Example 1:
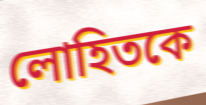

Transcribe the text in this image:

লোহিতকে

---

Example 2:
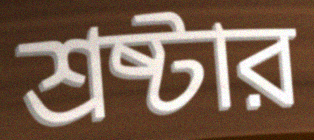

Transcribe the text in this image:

শ্রষ্টার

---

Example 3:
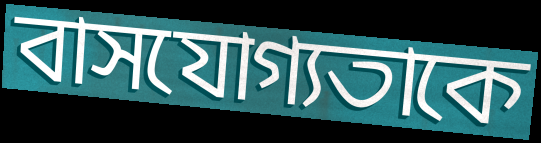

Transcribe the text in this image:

বাসযোগ্যতাকে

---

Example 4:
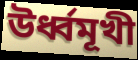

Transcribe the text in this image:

উর্ধ্বমূখী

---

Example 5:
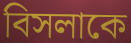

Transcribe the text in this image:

বিসলাকে